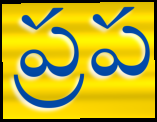
ప్రప